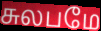
சுலபமே